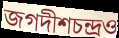
জগদীশচন্দ্রও